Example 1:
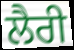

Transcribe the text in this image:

ਲੈਰੀ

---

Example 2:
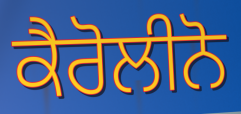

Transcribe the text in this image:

ਕੈਰੋਲੀਨੋ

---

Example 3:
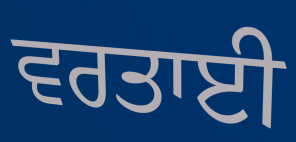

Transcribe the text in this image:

ਵਰਤਾਈ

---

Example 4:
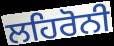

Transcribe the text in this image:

ਲਹਿਰੋਨੀ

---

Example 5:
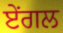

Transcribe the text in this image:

ਏਂਗਲ